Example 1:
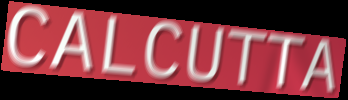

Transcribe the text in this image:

CALCUTTA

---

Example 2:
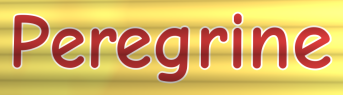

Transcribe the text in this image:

Peregrine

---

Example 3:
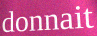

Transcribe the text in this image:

donnait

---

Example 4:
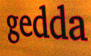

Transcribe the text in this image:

gedda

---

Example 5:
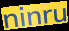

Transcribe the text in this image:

ninru